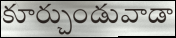
కూర్చుండువాడా